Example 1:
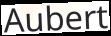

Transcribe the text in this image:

Aubert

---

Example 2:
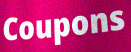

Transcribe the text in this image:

Coupons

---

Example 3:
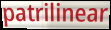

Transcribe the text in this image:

patrilinear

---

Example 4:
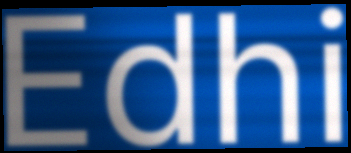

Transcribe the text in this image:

Edhi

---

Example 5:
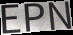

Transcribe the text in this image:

EPN